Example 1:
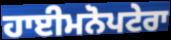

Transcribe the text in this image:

ਹਾਈਮਨੋਪਟੇਰਾ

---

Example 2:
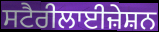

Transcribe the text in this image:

ਸਟੈਰੀਲਾਈਜ਼ੇਸ਼ਨ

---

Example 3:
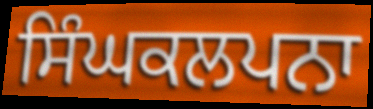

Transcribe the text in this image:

ਸਿੰਘਕਲਪਨਾ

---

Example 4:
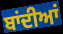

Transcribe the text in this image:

ਬਾਂਦੀਆਂ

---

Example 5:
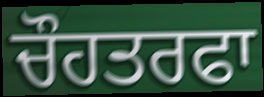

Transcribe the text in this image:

ਚੌਹਤਰਫਾ